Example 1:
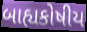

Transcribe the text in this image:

બાહ્યકોષીય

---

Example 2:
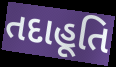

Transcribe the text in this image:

તદાહૂતિ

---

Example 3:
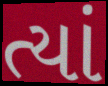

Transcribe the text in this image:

ત્‍યાં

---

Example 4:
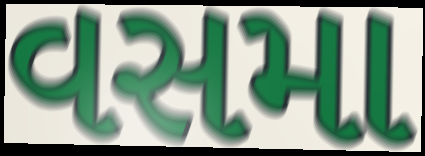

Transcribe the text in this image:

વસમા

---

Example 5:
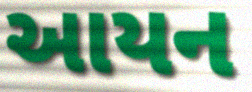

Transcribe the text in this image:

આયન